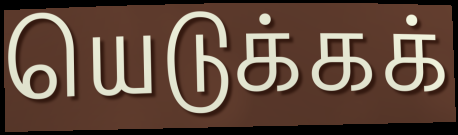
யெடுக்கக்